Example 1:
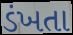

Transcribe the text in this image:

ડંખતા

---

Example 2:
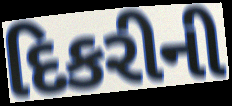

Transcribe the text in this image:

દિકરીની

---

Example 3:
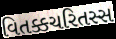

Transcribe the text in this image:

વિતક્કચરિતસ્સ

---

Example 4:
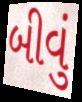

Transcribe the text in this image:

બીવું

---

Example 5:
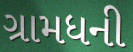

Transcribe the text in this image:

ગ્રામધની